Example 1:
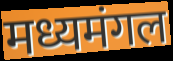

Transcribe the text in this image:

मध्यमंगल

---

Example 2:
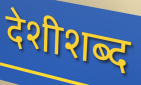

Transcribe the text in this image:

देशीशब्द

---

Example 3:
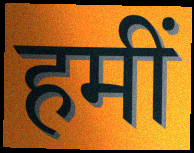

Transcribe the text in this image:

हमीं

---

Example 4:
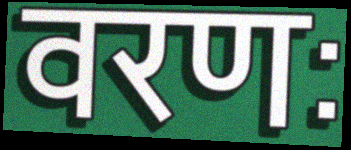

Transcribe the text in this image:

वरणः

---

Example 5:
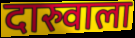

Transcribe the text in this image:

दारुवाला